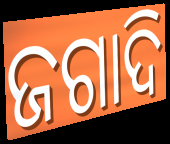
ଜଗାଦି